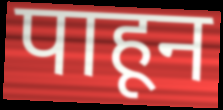
पाहून